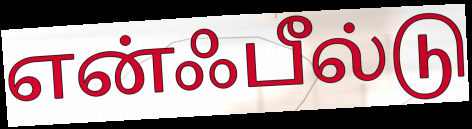
என்ஃபீல்டு